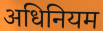
अधिनियम